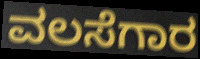
ವಲಸೆಗಾರ